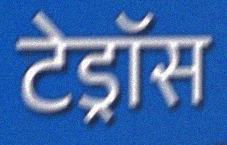
टेड्रॉस